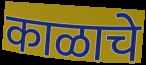
काळाचे